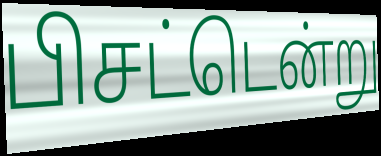
பிசட்டென்று